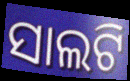
ସାଲଟି